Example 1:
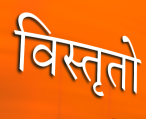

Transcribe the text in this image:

विस्तृतो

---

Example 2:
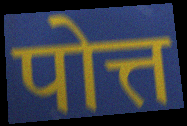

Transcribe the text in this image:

पोत्त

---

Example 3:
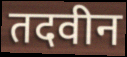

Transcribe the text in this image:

तदवीन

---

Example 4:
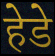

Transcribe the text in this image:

हेडे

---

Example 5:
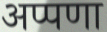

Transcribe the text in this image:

अप्पणा